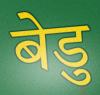
बेडु